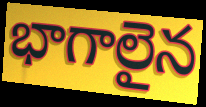
భాగాలైన